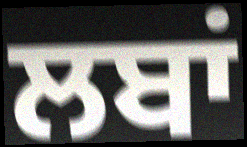
ਲਬਾਂ